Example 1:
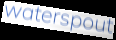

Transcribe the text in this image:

waterspout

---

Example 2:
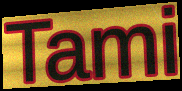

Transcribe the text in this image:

Tami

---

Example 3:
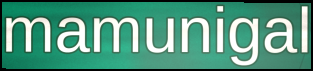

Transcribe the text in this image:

mamunigal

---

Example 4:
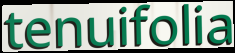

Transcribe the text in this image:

tenuifolia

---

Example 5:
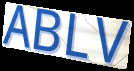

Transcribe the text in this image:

ABLV